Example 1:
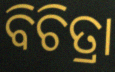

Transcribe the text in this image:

ବିଚିତ୍ରା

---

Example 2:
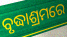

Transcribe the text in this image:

ବୃଦ୍ଧାଶ୍ରମରେ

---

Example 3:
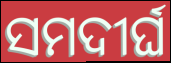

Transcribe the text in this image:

ସମଦୀର୍ଘ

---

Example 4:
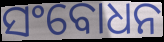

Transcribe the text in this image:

ସଂବୋଧନ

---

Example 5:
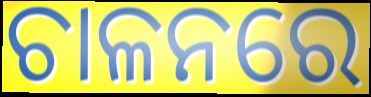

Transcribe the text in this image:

ଚାଳନରେ